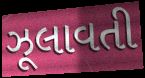
ઝૂલાવતી